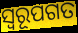
ସ୍ଵରୂପଗତ